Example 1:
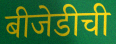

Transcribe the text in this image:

बीजेडीची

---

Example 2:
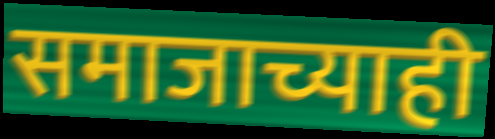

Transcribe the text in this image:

समाजाच्याही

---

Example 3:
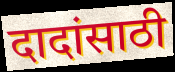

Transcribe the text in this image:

दादांसाठी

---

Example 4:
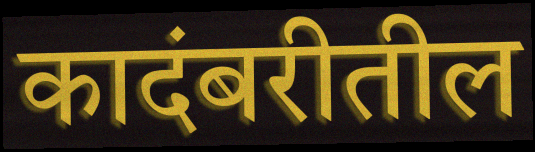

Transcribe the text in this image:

कादंबरीतील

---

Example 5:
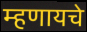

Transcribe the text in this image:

म्हणायचे